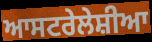
ਆਸਟਰੇਲੇਸ਼ੀਆ